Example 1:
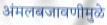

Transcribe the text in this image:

अंमलबजावणीमुळे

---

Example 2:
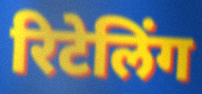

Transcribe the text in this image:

रिटेलिंग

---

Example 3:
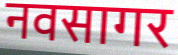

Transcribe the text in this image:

नवसागर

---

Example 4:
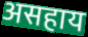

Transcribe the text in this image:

असहाय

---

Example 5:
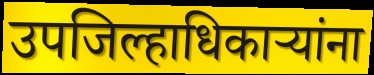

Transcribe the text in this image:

उपजिल्हाधिकाऱ्यांना